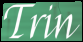
Trin